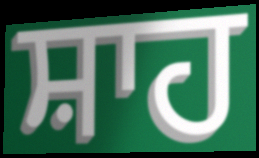
ਸ਼ਾਹ